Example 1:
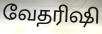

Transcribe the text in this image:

வேதரிஷி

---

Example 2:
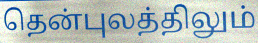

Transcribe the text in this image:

தென்புலத்திலும்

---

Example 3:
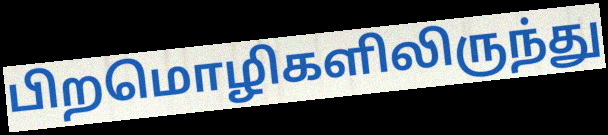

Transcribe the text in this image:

பிறமொழிகளிலிருந்து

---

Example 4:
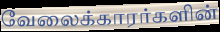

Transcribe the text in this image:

வேலைக்காரர்களின்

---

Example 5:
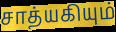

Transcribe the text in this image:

சாத்யகியும்